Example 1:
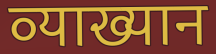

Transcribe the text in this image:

व्‍याख्‍यान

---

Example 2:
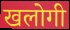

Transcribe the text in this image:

खलोगी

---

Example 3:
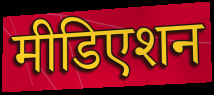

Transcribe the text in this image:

मीडिएशन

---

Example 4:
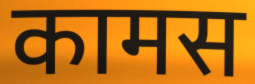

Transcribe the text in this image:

कामस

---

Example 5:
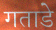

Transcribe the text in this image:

गताडे